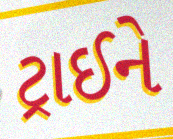
ટ્રાઈને